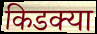
किडक्या